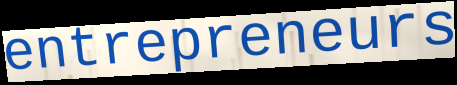
entrepreneurs